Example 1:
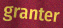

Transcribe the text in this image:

granter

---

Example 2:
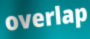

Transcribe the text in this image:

overlap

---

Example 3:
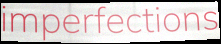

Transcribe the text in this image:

imperfections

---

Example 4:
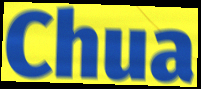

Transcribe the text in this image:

Chua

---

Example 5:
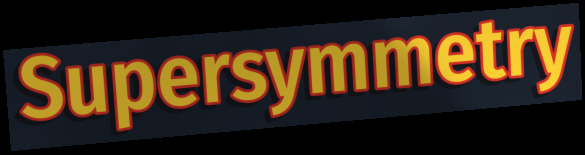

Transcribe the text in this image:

Supersymmetry